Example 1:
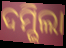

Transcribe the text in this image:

ଦମ୍ଭିଲା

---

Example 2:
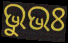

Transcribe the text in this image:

ଭୁଭଃ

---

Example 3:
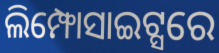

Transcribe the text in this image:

ଲିମ୍ଫୋସାଇଟ୍ସରେ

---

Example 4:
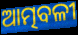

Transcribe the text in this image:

ଆତ୍ମବଳୀ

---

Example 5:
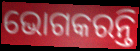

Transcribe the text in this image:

ଭୋଗକରନ୍ତି